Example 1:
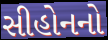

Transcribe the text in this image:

સીહોનનો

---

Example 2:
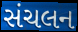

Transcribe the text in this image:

સંચલન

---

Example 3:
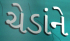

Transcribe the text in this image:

ચેડાંને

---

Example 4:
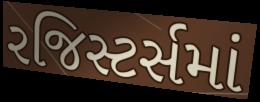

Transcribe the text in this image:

રજિસ્ટર્સમાં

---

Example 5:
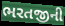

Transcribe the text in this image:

ભરતજીની